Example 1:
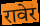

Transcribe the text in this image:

रावेर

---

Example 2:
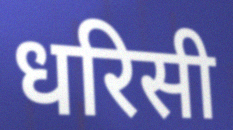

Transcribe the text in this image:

धरिसी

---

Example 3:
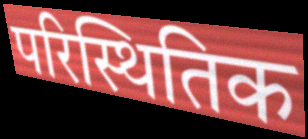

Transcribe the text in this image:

परिस्थितिक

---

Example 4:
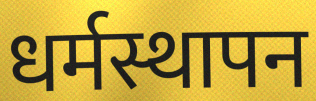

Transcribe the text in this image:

धर्मस्थापन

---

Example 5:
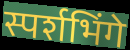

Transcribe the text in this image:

स्पर्शभिंगे